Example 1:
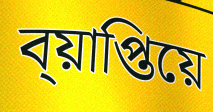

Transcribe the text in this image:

ব্য়াপ্তিয়ে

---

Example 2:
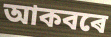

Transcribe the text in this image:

আকবৰে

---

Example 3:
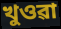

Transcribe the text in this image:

খুওৱা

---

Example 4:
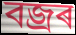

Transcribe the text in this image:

বজ্ৰৰ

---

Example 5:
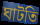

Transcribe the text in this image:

ঘাটতি